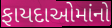
ફાયદાઓમાંનો